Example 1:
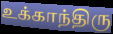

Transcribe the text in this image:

உக்காந்திரு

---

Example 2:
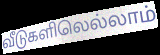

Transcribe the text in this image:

வீடுகளிலெல்லாம்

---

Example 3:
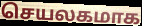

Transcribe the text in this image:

செயலகமாக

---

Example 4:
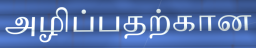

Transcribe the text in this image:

அழிப்பதற்கான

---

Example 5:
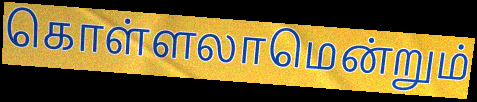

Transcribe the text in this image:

கொள்ளலாமென்றும்